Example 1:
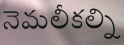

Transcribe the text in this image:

నెమలీకల్ని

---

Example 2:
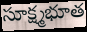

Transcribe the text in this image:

సూక్ష్మభూత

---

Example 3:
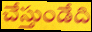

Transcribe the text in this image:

చేస్తుండేది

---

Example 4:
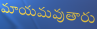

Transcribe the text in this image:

మాయమవుతారు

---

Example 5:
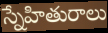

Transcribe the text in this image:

స్నేహితురాలు